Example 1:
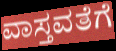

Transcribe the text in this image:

ವಾಸ್ತವತೆಗೆ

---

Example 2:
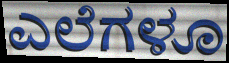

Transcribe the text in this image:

ಎಲೆಗಳೂ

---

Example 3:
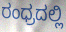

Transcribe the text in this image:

ರಂಧ್ರದಲ್ಲಿ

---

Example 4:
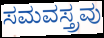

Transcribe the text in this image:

ಸಮವಸ್ತ್ರವು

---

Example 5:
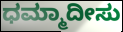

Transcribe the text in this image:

ಧಮ್ಮಾದೀಸು